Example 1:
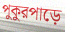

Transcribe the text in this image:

পুকুরপাড়ে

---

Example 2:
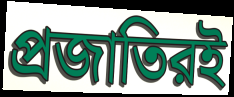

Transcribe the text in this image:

প্রজাতিরই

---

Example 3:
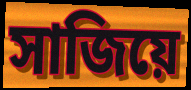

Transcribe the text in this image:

সাজিয়ে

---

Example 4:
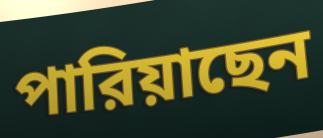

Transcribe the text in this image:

পারিয়াছেন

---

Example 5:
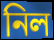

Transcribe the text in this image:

নিল